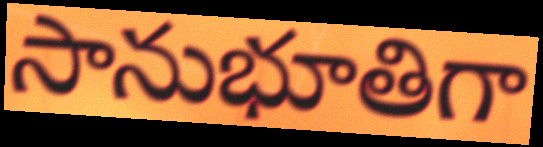
సానుభూతిగా